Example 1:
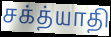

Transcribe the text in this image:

சக்த்யாதி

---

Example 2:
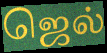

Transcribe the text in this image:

ஜெல்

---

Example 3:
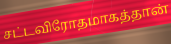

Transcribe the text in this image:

சட்டவிரோதமாகத்தான்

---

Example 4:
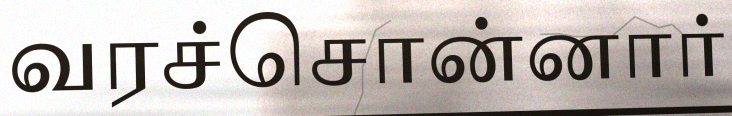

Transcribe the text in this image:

வரச்சொன்னார்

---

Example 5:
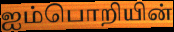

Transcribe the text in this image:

ஐம்பொறியின்